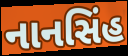
નાનસિંહ